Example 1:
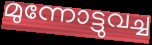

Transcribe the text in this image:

മുന്നോട്ടുവച്ച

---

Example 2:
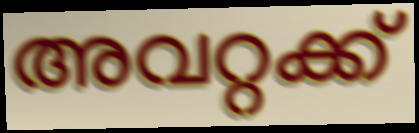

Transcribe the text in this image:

അവറ്റക്ക്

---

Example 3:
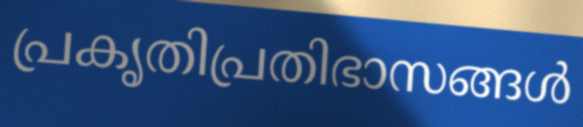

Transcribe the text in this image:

പ്രകൃതിപ്രതിഭാസങ്ങൾ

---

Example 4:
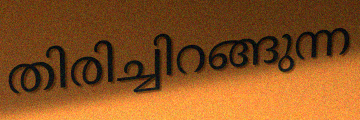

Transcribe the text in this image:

തിരിച്ചിറങ്ങുന്ന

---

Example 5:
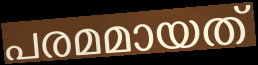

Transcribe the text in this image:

പരമമായത്